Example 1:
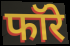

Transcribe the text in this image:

फॉरे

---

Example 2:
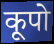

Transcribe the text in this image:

कूपो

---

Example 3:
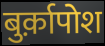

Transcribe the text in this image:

बुर्क़ापोश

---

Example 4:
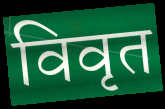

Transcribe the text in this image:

विवृत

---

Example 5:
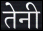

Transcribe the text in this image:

तेनी